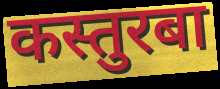
कस्तुरबा